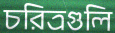
চরিত্রগুলি